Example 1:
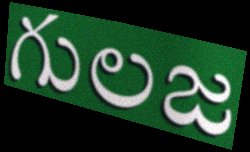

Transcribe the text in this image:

గులజ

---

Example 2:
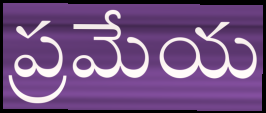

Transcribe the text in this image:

ప్రమేయ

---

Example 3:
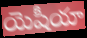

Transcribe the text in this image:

యెషీయా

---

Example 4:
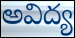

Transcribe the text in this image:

అవిద్య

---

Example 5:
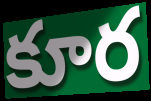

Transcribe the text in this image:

కూర